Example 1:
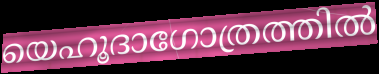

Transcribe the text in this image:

യെഹൂദാഗോത്രത്തിൽ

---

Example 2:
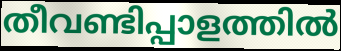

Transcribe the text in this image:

തീവണ്ടിപ്പാളത്തിൽ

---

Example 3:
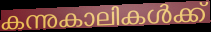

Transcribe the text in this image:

കന്നുകാലികൾക്ക്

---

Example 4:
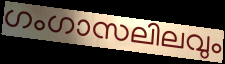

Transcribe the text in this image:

ഗംഗാസലിലവും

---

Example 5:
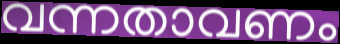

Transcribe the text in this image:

വന്നതാവണം